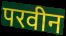
परवीन